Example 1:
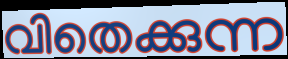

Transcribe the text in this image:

വിതെക്കുന്ന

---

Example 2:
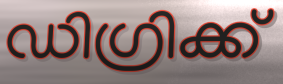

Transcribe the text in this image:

ഡിഗ്രിക്ക്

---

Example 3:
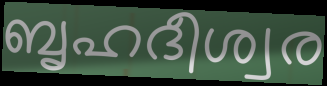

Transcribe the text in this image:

ബൃഹദീശ്വര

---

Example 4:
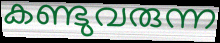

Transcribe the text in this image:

കണ്ടുവരുന്ന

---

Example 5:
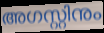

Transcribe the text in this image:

അഗസ്റ്റിനും